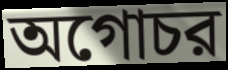
অগোচর